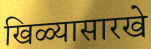
खिळ्यासारखे